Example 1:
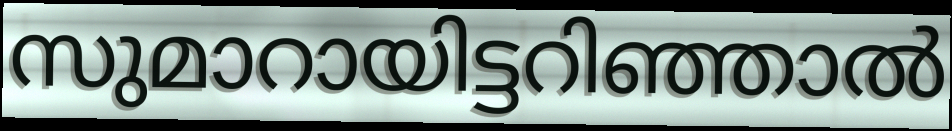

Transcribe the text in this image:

സുമാറായിട്ടറിഞ്ഞാൽ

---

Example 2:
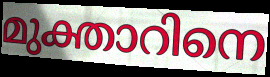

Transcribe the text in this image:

മുക്താറിനെ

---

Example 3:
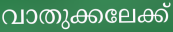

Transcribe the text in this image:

വാതുക്കലേക്ക്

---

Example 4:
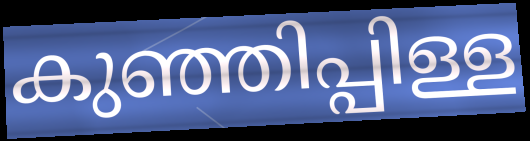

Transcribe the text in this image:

കുഞ്ഞിപ്പിള്ള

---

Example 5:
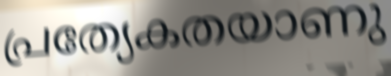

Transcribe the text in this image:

പ്രത്യേകതയാണു